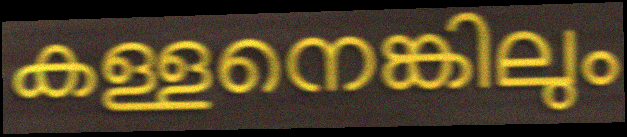
കള്ളനെങ്കിലും